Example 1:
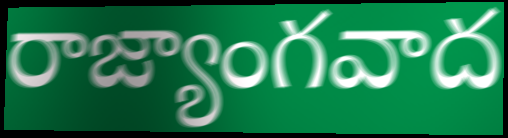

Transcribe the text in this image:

రాజ్యాంగవాద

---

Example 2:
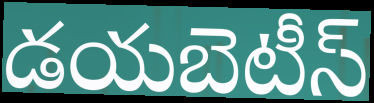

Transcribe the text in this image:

డయబెటీస్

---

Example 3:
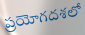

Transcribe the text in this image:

ప్రయోగదశలో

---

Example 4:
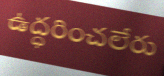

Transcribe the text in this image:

ఉద్ధరించలేరు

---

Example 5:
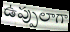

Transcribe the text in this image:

ఉప్పులాగా